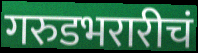
गरुडभरारीचं